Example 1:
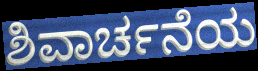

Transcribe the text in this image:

ಶಿವಾರ್ಚನೆಯ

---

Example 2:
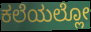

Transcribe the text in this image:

ಕಲೆಯಲ್ಲೋ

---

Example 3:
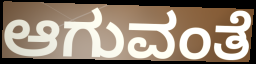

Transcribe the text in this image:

ಆಗುವಂತೆ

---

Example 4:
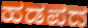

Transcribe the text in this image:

ಹಡಪದ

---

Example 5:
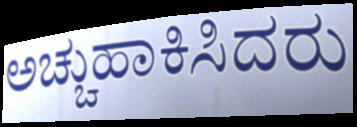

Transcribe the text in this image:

ಅಚ್ಚುಹಾಕಿಸಿದರು